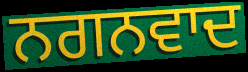
ਨਗਨਵਾਦ